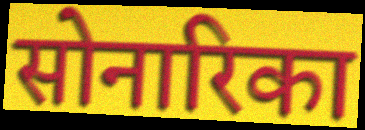
सोनारिका